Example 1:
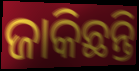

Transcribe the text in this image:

ଜାକିଛନ୍ତି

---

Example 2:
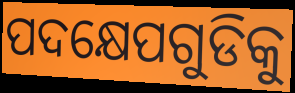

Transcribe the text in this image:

ପଦକ୍ଷେପଗୁଡିକୁ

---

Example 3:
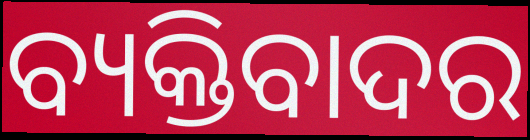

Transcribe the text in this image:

ବ୍ୟକ୍ତିବାଦର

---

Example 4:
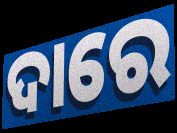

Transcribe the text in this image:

ଦାରେ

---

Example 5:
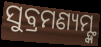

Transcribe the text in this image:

ସୁବ୍ରମଣ୍ୟମ୍ଙ୍କ